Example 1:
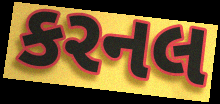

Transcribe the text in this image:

કરનલ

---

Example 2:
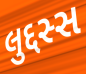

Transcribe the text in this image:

લુદ્દસ્સ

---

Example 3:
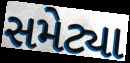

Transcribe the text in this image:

સમેટ્યા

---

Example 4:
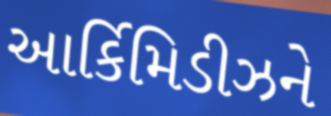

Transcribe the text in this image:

આર્કિમિડીઝને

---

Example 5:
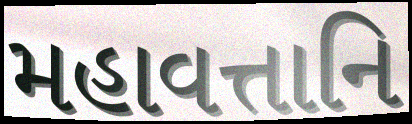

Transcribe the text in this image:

મહાવત્તાનિ